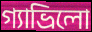
গ্যাভ্রিলো